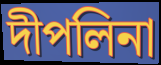
দীপলিনা